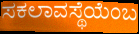
ಸಕಲಾವಸ್ಥೆಯೆಂಬ